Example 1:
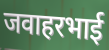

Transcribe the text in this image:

जवाहरभाई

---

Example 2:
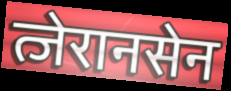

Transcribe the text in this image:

त्जेरानसेन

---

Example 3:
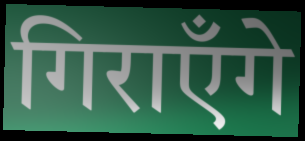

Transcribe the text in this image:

गिराएँगे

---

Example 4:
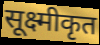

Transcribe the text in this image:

सूक्ष्मीकृत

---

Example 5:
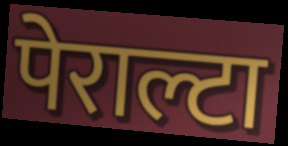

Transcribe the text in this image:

पेराल्टा